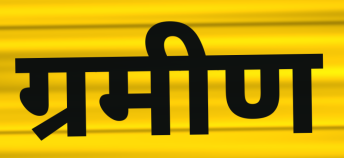
ग्रमीण